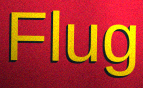
Flug